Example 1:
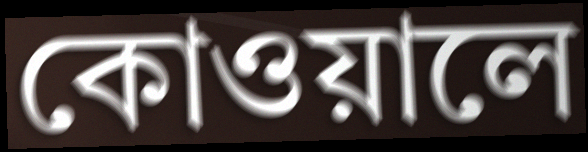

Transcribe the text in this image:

কোওয়ালে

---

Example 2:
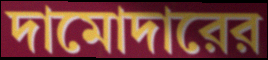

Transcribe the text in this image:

দামোদারের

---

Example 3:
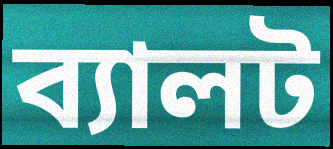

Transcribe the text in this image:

ব্যালট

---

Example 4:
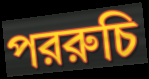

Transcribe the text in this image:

পররুচি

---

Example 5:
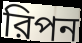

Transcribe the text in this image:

রিপন